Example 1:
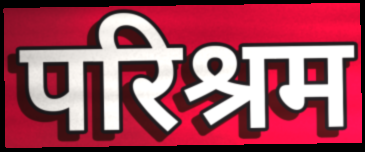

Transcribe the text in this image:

परिश्रम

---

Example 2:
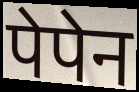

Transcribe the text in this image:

पेपेन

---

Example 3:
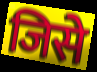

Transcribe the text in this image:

जिसे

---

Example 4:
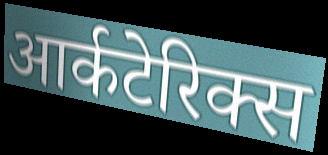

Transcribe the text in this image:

आर्कटेरिक्स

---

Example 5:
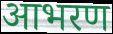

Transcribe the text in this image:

आभरण